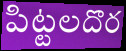
పిట్టలదొర